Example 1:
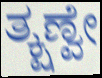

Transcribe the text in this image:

ತ್ಕ್ಷಣ್ವೇ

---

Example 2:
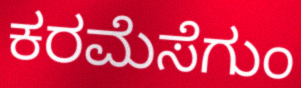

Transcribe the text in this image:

ಕರಮೆಸೆಗುಂ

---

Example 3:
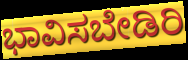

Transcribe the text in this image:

ಭಾವಿಸಬೇಡಿರಿ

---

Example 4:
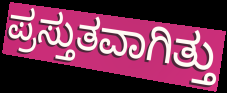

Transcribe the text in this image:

ಪ್ರಸ್ತುತವಾಗಿತ್ತು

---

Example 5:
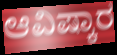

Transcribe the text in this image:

ಆವಿಷ್ಕಾರ